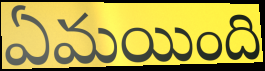
ఏమయింది